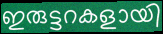
ഇരുട്ടറകളായി